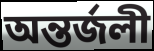
অন্তর্জলী